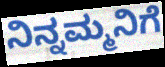
ನಿನ್ನಮ್ಮನಿಗೆ